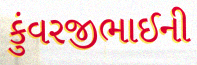
કુંવરજીભાઈની